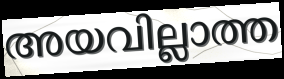
അയവില്ലാത്ത